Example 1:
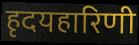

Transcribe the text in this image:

हृदयहारिणी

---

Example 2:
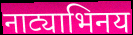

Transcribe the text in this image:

नाट्याभिनय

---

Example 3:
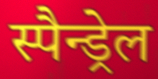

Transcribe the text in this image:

स्पैन्ड्रेल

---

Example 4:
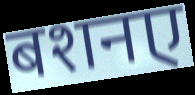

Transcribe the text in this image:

बशनए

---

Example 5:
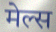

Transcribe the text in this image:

मेल्स